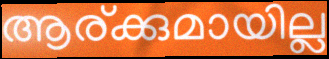
ആര്ക്കുമായില്ല